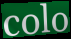
colo